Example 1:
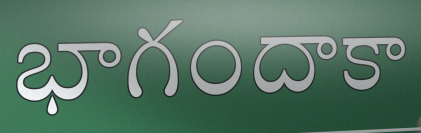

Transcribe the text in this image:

భాగందాకా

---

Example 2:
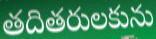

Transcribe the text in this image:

తదితరులకును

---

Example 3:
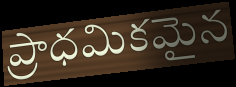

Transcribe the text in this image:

ప్రాధమికమైన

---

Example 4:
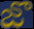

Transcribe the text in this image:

జొ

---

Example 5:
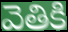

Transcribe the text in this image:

వెతికి